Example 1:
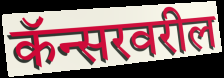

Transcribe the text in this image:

कॅन्सरवरील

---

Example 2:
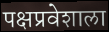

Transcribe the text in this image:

पक्षप्रवेशाला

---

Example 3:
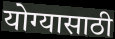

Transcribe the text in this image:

योग्यासाठी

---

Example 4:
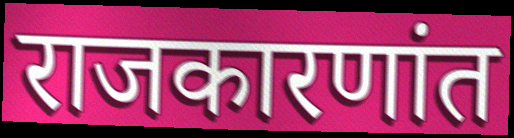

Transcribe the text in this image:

राजकारणांत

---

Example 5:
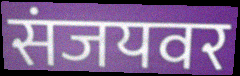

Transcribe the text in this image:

संजयवर